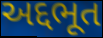
અદ્દભૂત